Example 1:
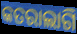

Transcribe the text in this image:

କତରାଲାଗି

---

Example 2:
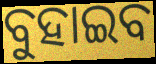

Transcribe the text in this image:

ବୁହାଇବ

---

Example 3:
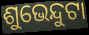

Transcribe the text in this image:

ଶୁଭେନ୍ଦୁଟା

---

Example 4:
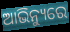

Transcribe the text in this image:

ଆଭିନ୍ୟୁରେ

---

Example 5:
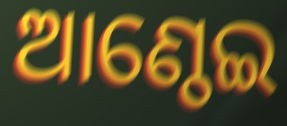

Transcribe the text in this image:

ଆଣ୍ଠେଇ